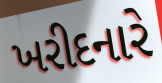
ખરીદનારે